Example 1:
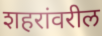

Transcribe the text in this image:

शहरांवरील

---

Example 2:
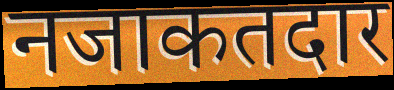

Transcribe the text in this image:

नजाकतदार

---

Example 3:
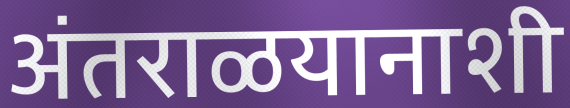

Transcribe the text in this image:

अंतराळयानाशी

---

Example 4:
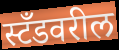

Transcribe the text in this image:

स्टँडवरील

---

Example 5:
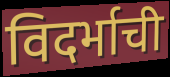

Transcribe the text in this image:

विदर्भाची